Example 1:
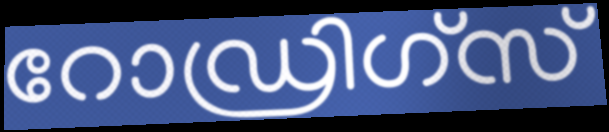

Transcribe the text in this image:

റോഡ്രിഗ്സ്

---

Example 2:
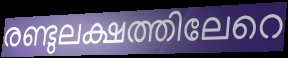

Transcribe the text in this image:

രണ്ടുലക്ഷത്തിലേറെ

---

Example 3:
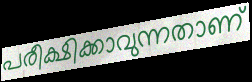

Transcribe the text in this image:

പരീക്ഷിക്കാവുന്നതാണ്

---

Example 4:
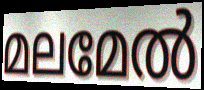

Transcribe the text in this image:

മലമേൽ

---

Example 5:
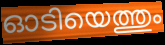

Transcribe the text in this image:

ഓടിയെത്തും